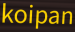
koipan